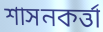
শাসনকৰ্ত্তা